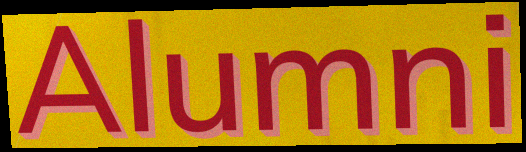
Alumni